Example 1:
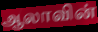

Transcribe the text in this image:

ஆலாவின்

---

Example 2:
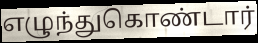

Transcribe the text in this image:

எழுந்துகொண்டார்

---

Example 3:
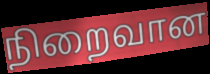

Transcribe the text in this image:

நிறைவான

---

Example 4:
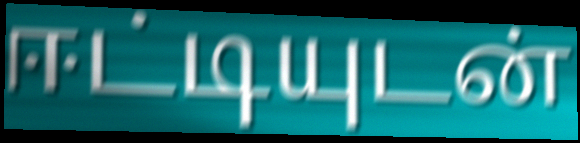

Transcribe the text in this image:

ஈட்டியுடன்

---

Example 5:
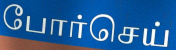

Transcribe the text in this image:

போர்செய்